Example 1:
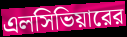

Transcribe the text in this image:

এলসিভিয়ারের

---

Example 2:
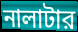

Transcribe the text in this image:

নালাটার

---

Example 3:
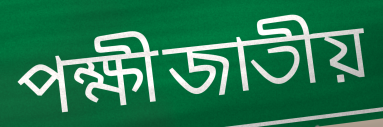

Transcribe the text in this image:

পক্ষীজাতীয়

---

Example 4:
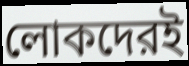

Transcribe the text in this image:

লোকদেরই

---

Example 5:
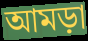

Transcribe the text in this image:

আমড়া